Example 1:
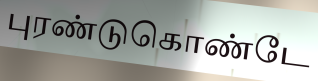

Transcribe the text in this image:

புரண்டுகொண்டே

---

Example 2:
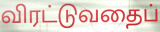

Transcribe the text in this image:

விரட்டுவதைப்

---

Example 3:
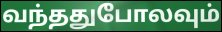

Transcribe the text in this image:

வந்ததுபோலவும்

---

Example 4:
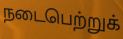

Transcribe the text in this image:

நடைபெற்றுக்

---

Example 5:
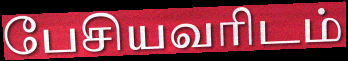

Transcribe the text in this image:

பேசியவரிடம்